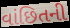
વાંછિતની